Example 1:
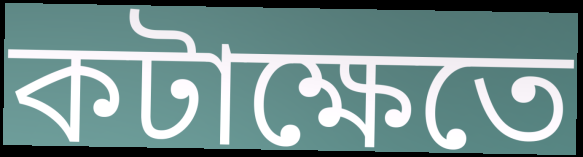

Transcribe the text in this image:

কটাক্ষেতে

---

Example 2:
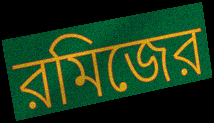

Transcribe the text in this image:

রমিজের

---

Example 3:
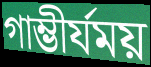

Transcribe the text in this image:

গাম্ভীর্যময়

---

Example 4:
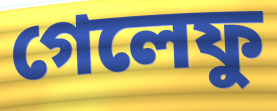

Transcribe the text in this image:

গেলেফু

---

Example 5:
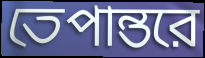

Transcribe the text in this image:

তেপান্তরে